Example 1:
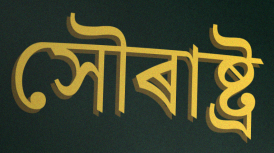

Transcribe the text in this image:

সৌৰাষ্ট্ৰ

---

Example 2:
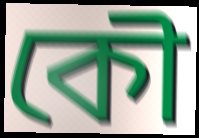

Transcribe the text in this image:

কৌ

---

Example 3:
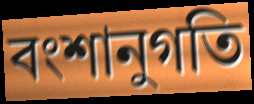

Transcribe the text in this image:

বংশানুগতি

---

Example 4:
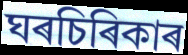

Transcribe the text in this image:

ঘৰচিৰিকাৰ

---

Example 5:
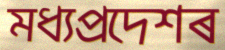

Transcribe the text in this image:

মধ্যপ্ৰদেশৰ